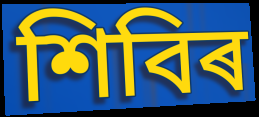
শিবিৰ